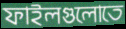
ফাইলগুলোতে